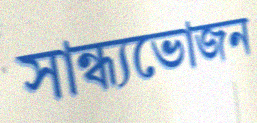
সান্ধ্যভোজন